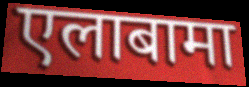
एलाबामा